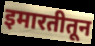
इमारतीतून